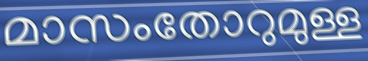
മാസംതോറുമുള്ള